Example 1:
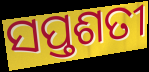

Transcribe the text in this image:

ସପ୍ତଶତୀ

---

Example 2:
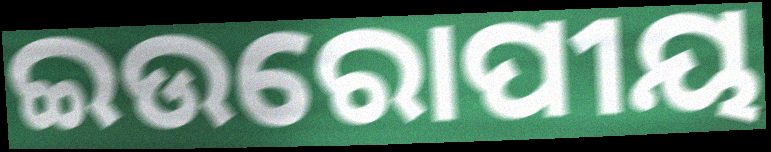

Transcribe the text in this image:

ଇଉରୋପୀୟ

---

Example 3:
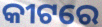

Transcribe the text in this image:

କୀଟରେ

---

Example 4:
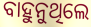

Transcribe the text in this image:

ବାହୁନୁଥିଲେ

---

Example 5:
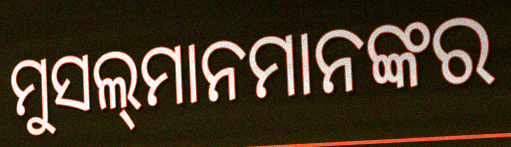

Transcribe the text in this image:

ମୁସଲ୍‌ମାନମାନଙ୍କର